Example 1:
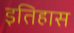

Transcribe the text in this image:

इतिहास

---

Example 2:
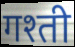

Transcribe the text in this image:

गश्ती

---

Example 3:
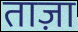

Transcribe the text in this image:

ताज़ा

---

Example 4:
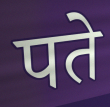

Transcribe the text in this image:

पते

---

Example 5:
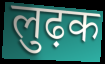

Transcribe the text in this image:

लुढ़क